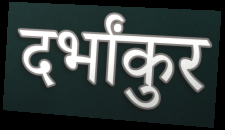
दर्भांकुर